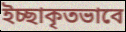
ইচ্ছাকৃতভাবে